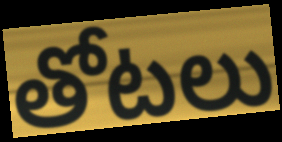
తోటలు